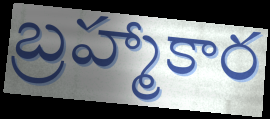
బ్రహ్మాకార